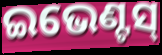
ଇଭେଣ୍ଟସ୍